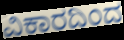
ವಿಕಾರದಿಂದ